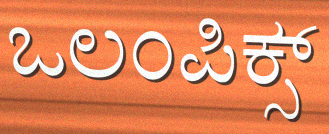
ಒಲಂಪಿಕ್ಸ್